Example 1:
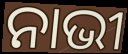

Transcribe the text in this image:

ନାଭୀ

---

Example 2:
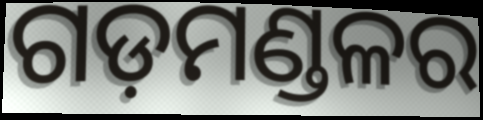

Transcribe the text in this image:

ଗଡ଼ମଣ୍ଡଳର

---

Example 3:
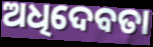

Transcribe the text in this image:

ଅଧିଦେବତା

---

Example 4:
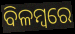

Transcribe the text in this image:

ବିଳମ୍ୱରେ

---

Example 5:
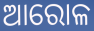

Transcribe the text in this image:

ଆରୋଳ